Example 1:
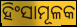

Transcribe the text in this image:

ହିଂସାମୂଳକ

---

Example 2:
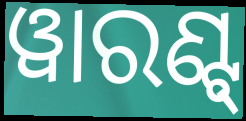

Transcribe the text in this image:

ୱାରଣ୍ଟ୍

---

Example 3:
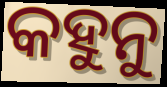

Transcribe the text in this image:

କହୁନୁ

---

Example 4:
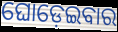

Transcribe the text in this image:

ଘୋଡ଼େଇବାର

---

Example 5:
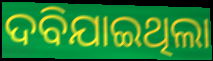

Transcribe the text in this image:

ଦବିଯାଇଥିଲା